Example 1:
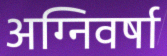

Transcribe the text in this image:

अग्निवर्षा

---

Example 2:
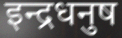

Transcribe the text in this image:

इन्द्रधनुष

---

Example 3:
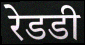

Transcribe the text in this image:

रेडडी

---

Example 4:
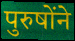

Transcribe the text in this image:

पुरुषोंने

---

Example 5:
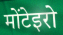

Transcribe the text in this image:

मोंटेइरो